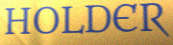
HOLDER